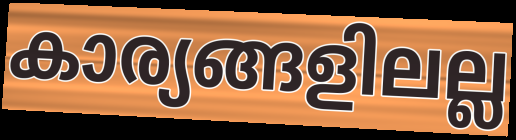
കാര്യങ്ങളിലല്ല